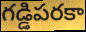
గడ్డిపరకా